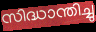
സിദ്ധാന്തിച്ചു